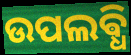
ଉପଲଵ୍ଧି